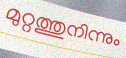
മുറ്റത്തുനിന്നും